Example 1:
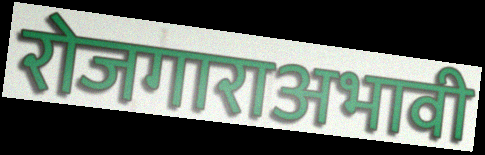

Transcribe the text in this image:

रोजगाराअभावी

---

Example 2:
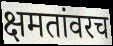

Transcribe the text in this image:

क्षमतांवरच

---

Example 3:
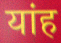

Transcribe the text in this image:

यांह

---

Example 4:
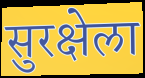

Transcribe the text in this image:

सुरक्षेला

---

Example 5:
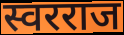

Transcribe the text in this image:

स्वरराज